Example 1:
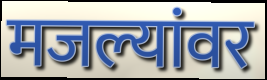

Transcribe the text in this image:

मजल्यांवर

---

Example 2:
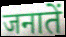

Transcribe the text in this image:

जनातें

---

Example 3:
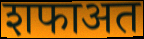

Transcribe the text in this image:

शफाअत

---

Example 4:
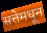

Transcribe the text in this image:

सत्तेमधून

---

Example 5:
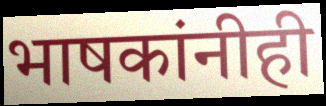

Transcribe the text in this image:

भाषकांनीही